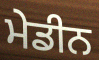
ਮੇਡੀਨ